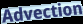
Advection